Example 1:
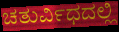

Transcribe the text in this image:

ಚತುರ್ವಿಧದಲ್ಲಿ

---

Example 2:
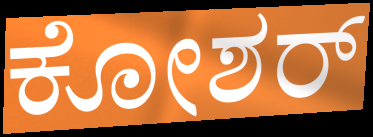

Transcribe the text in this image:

ಕೋಶರ್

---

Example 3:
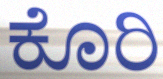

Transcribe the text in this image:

ಕೊರಿ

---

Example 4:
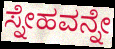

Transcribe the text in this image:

ಸ್ನೇಹವನ್ನೇ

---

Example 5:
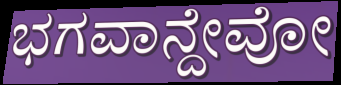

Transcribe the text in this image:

ಭಗವಾನ್ದೇವೋ